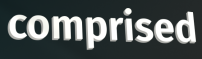
comprised